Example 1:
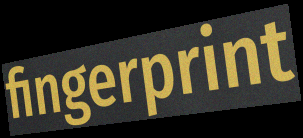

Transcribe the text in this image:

fingerprint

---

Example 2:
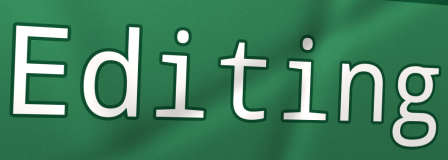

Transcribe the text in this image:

Editing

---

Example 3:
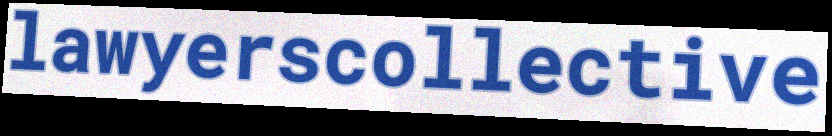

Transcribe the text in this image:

lawyerscollective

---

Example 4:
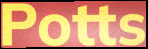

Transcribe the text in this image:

Potts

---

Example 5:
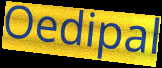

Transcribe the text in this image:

Oedipal